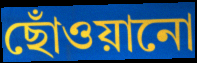
ছোঁওয়ানো